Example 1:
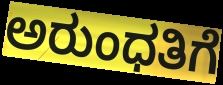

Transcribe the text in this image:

ಅರುಂಧತಿಗೆ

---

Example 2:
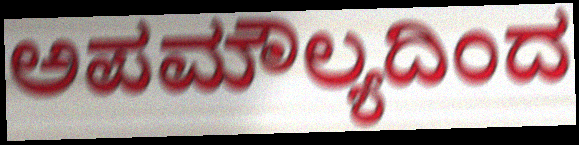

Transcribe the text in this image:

ಅಪಮೌಲ್ಯದಿಂದ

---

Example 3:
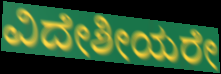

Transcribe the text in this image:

ವಿದೇಶೀಯರೇ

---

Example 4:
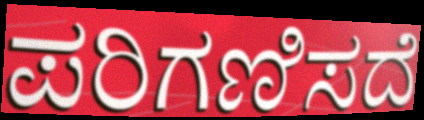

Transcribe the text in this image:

ಪರಿಗಣಿಸದೆ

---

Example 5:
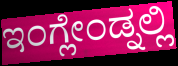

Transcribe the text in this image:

ಇಂಗ್ಲೇಂಡ್ನಲ್ಲಿ